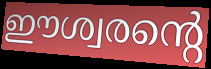
ഈശ്വരന്റെ